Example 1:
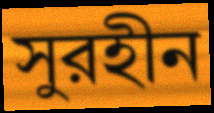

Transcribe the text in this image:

সুরহীন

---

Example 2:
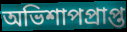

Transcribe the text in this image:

অভিশাপপ্রাপ্ত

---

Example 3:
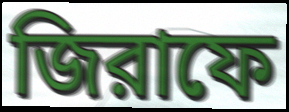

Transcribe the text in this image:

জিরাফে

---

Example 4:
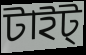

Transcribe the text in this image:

টাইট্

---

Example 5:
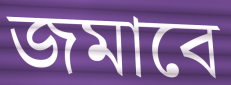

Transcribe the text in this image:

জমাবে